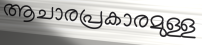
ആചാരപ്രകാരമുള്ള